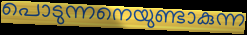
പൊടുന്നനെയുണ്ടാകുന്ന